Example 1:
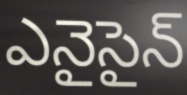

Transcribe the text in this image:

ఎనైసైన్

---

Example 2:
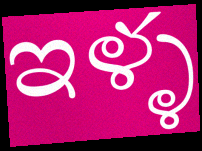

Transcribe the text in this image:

ఇళ్ళ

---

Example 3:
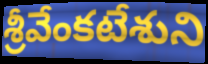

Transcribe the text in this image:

శ్రీవేంకటేశుని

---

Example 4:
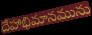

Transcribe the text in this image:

దేహాభిమానమును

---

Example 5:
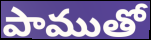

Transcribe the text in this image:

పాముతో